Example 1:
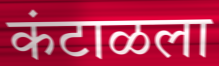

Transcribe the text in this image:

कंटाळला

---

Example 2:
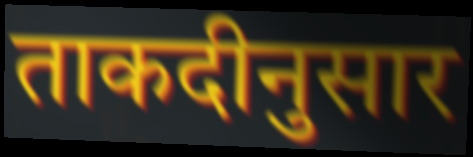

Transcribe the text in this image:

ताकदीनुसार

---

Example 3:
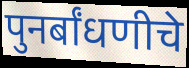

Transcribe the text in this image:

पुनर्बांधणीचे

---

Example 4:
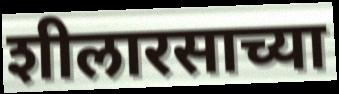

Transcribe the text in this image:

शीलारसाच्या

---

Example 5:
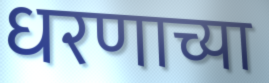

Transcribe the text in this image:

धरणाच्या